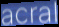
acral